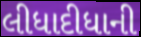
લીધાદીધાની